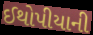
ઈથોપીયાની